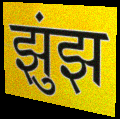
झुंझ